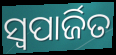
ସ୍ଵପାର୍ଜିତ